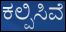
ಕಲ್ಪಿಸಿವೆ